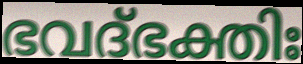
ഭവദ്ഭക്തിഃ